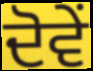
ਦੋਵੇੰ